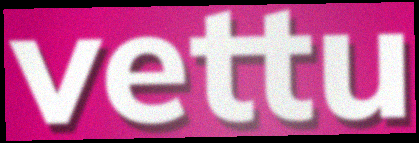
vettu